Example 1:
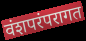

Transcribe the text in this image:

वंशपरंपरागत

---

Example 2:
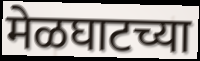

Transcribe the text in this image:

मेळघाटच्या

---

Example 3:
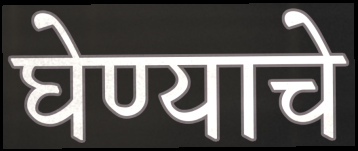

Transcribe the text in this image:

घेण्याचे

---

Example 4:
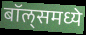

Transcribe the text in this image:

बॉल्समध्ये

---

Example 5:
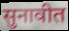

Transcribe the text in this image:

सुनावीत